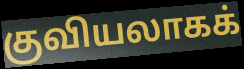
குவியலாகக்